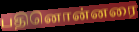
பதினொன்னரை